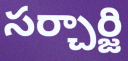
సర్చార్జి